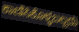
ಕಾಣಿಸಿಕೊಳ್ಳಬಲ್ಲದು